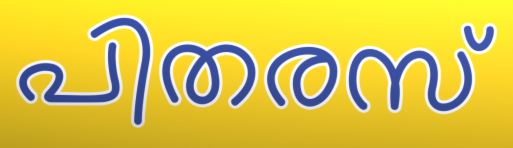
പിതരസ്